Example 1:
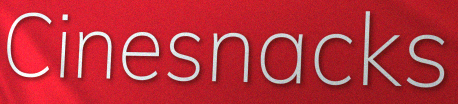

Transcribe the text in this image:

Cinesnacks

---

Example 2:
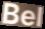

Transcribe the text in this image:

Bel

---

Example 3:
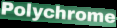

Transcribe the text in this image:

Polychrome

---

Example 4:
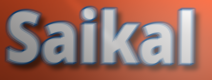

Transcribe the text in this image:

Saikal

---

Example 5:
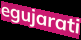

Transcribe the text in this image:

egujarati